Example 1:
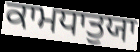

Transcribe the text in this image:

ਕਾਮਧਾਤੁਯਾ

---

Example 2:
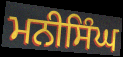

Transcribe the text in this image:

ਮਨੀਸਿੰਘ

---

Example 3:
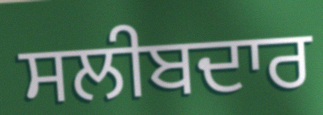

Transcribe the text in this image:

ਸਲੀਬਦਾਰ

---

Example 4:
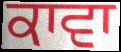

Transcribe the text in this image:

ਕਾਵਾ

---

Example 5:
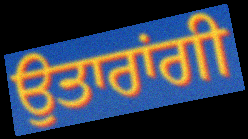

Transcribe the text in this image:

ਉਤਾਰਾਂਗੀ